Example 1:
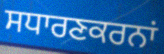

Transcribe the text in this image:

ਸਧਾਰਣਕਰਨਾਂ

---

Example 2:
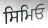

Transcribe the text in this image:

ਸਿਮਿਓ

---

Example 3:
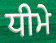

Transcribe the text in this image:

ਧੀਮੇ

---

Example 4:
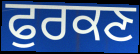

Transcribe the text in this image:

ਫੁਰਕਣ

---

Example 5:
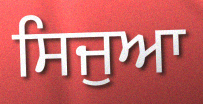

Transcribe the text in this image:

ਸਿਜੁਆ